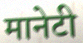
मानेटी